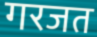
गरजत